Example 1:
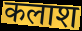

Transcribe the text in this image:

कलाश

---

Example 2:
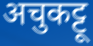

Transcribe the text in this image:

अचुकट्टू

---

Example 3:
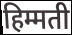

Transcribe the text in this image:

हिम्मती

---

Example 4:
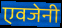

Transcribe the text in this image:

एवजेनी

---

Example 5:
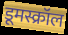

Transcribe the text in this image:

डूमस्क्रॉल